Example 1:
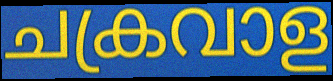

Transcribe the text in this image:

ചക്രവാള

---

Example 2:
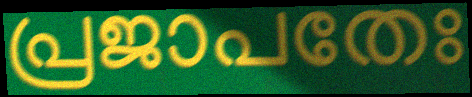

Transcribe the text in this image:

പ്രജാപതേഃ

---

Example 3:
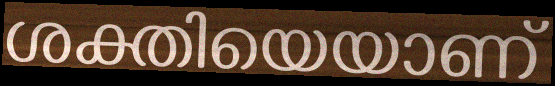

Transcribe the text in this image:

ശക്തിയെയാണ്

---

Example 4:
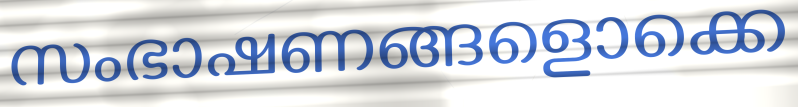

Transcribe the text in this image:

സംഭാഷണങ്ങളൊക്കെ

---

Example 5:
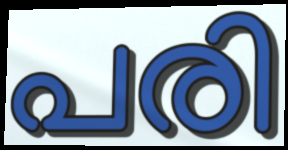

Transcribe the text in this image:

പരി